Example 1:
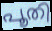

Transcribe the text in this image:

പൂതി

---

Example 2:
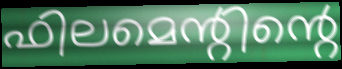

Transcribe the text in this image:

ഫിലമെന്റിന്റെ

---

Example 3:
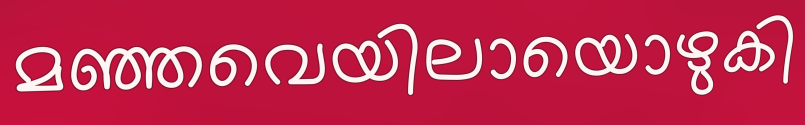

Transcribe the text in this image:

മഞ്ഞവെയിലായൊഴുകി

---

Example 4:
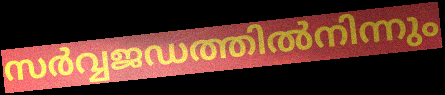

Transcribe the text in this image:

സർവ്വജഡത്തിൽനിന്നും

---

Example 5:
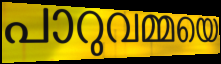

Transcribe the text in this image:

പാറുവമ്മയെ